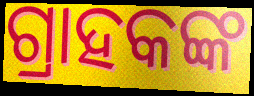
ଗ୍ରାହକଙ୍କ